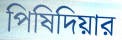
পিষিদিয়ার